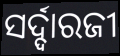
ସର୍ଦ୍ଦାରଜୀ